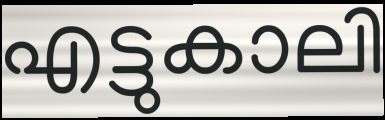
എട്ടുകാലി